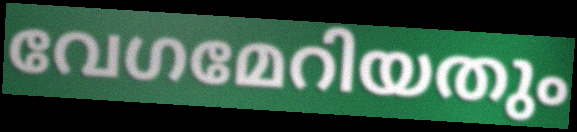
വേഗമേറിയതും